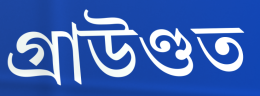
গ্ৰাউণ্ডত